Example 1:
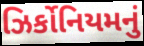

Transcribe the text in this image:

ઝિર્કોનિયમનું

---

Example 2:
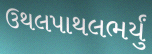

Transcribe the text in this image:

ઉથલપાથલભર્યું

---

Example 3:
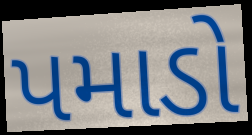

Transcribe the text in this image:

પમાડો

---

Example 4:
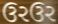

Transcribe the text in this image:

ઉરઉર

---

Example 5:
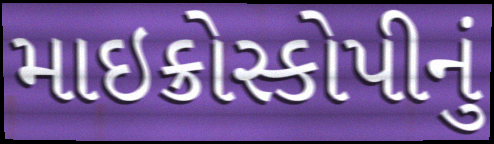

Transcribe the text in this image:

માઇક્રોસ્કોપીનું